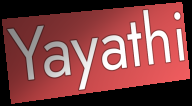
Yayathi